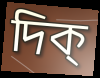
দিক্